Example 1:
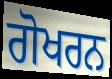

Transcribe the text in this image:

ਗੋਖਰਨ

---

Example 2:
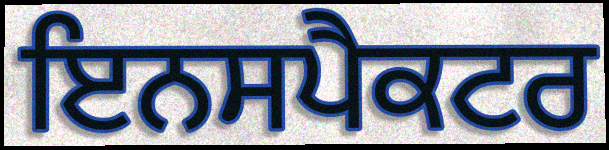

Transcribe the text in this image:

ਇਨਸਪੈਕਟਰ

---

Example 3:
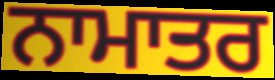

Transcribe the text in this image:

ਨਾਮਾਤਰ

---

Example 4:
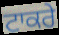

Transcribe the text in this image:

ਟਾਕਰੇ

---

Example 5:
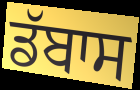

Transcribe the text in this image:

ਡੱਬਾਸ